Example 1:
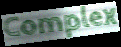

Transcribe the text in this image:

Complex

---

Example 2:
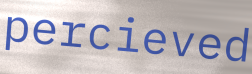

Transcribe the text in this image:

percieved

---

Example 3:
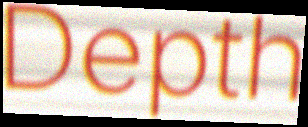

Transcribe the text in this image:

Depth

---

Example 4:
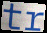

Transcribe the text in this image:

tr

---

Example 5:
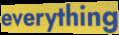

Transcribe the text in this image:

everything